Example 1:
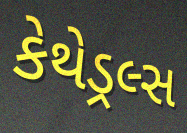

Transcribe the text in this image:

કેથેડ્રલ્સ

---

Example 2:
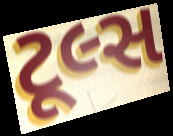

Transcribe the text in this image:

ટૂલ્સ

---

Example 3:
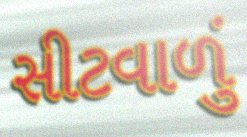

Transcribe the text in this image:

સીટવાળું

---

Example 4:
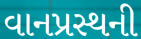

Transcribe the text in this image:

વાનપ્રસ્થની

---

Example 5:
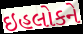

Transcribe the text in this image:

ઇહલોકને